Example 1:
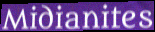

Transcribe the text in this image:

Midianites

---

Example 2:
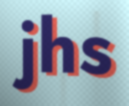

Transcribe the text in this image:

jhs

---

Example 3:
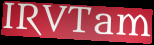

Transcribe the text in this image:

IRVTam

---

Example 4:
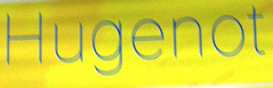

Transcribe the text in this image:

Hugenot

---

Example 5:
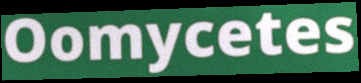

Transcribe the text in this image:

Oomycetes